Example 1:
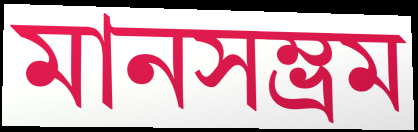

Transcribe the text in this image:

মানসম্ভ্রম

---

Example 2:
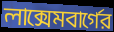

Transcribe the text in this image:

লাক্সেমবার্গের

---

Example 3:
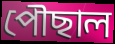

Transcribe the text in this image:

পৌছাল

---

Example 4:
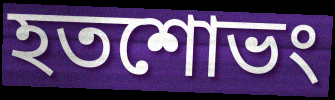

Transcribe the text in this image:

হতশোভং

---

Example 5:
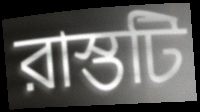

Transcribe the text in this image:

রাস্তটি